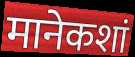
मानेकशां